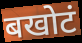
बखोटं